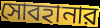
সোবহানার